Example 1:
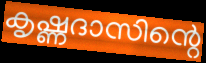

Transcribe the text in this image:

കൃഷ്ണദാസിന്റെ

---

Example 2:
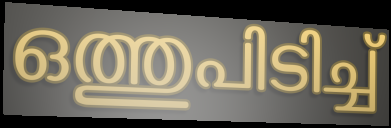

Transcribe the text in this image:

ഒത്തുപിടിച്ച്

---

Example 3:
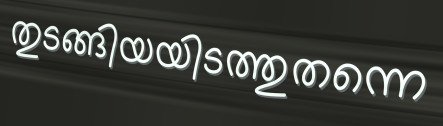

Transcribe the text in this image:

തുടങ്ങിയയിടത്തുതന്നെ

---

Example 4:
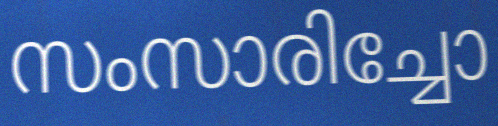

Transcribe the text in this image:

സംസാരിച്ചോ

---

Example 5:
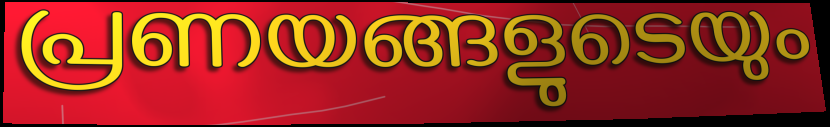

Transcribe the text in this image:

പ്രണയങ്ങളുടെയും